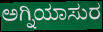
ಅಗ್ನಿಯಾಸುರ